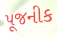
પૂજનીક